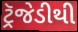
ટ્રૅજેડીથી